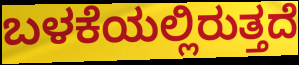
ಬಳಕೆಯಲ್ಲಿರುತ್ತದೆ